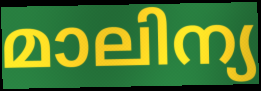
മാലിന്യ